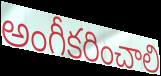
అంగీకరించాలి